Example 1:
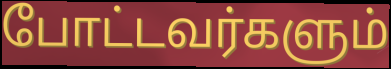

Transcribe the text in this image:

போட்டவர்களும்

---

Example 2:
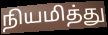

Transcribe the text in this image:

நியமித்து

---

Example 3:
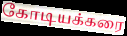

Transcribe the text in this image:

கோடியக்கரை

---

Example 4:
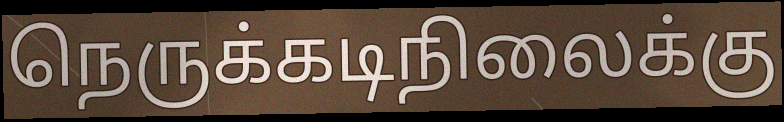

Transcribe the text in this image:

நெருக்கடிநிலைக்கு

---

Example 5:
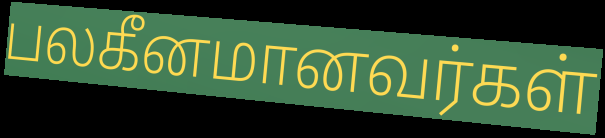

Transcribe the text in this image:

பலகீனமானவர்கள்